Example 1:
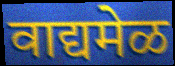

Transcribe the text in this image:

वाद्यमेळ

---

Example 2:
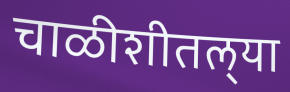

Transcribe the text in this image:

चाळीशीतल्या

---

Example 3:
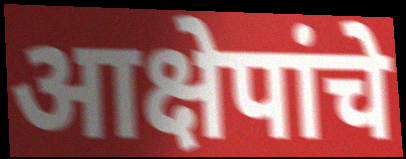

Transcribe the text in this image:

आक्षेपांचे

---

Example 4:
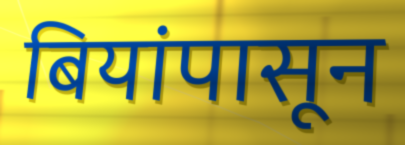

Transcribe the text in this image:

बियांपासून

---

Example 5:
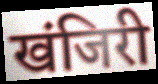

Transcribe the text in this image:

खंजिरी